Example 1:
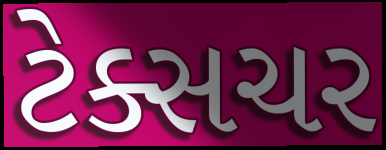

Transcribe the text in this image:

ટેક્સચર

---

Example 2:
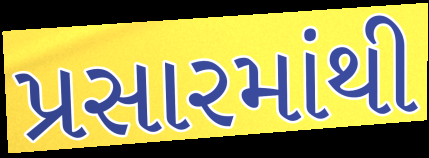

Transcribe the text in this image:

પ્રસારમાંથી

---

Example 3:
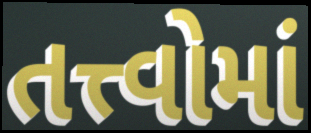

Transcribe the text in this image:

તત્ત્વોમાં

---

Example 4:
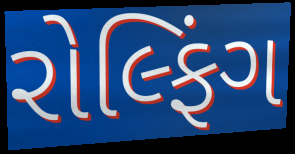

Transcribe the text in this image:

રોલ્ફિંગ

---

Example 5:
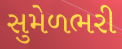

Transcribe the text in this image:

સુમેળભરી